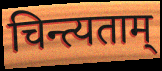
चिन्त्यताम्